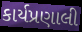
કાર્યપ્રણાલી